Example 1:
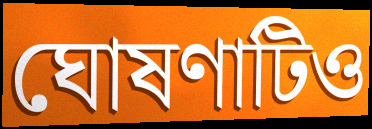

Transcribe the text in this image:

ঘোষণাটিও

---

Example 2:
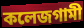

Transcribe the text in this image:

কলেজগামী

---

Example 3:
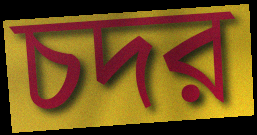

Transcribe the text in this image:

চদর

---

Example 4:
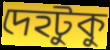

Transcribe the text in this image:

দেহটুকু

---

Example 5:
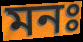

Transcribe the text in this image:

মনঃ